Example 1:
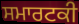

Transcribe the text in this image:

ਸਮਾਰਟਕੀ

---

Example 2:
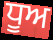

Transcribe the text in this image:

ਧੂਅ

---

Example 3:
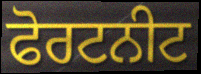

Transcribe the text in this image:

ਫੋਰਟਨੀਟ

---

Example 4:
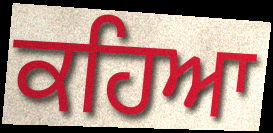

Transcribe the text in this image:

ਕਹਿਆ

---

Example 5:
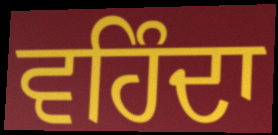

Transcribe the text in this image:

ਵਹਿੰਦਾ